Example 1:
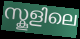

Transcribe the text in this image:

സ്കൂളിലെ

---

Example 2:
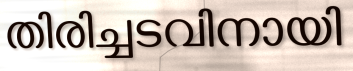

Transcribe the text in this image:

തിരിച്ചടവിനായി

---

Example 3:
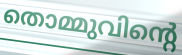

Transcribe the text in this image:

തൊമ്മുവിന്റെ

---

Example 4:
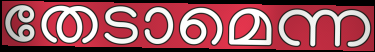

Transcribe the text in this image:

തേടാമെന്ന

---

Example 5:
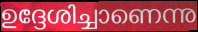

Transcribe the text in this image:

ഉദ്ദേശിച്ചാണെന്നു